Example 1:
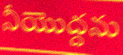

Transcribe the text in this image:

నీయొద్దను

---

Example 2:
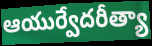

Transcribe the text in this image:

ఆయుర్వేదరీత్యా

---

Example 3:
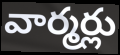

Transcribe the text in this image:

వార్మర్లు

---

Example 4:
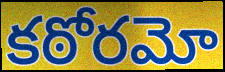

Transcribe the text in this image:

కఠోరమో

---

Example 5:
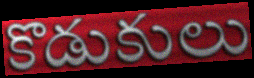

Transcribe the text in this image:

కొడుకులు